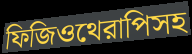
ফিজিওথেরাপিসহ